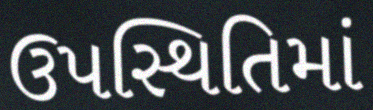
ઉપસ્થિતિમાં